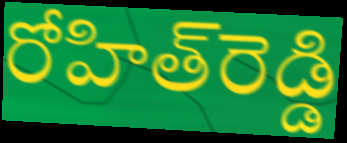
రోహిత్‌రెడ్డి